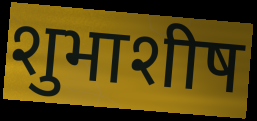
शुभाशीष